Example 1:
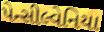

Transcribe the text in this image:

પેન્સીલ્વેનિયા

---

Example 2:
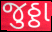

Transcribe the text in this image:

જુઠ્ઠા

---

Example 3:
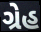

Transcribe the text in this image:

ગ્રેહ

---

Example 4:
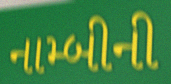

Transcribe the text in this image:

નામ્બીની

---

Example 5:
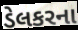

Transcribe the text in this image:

ડેલકરના